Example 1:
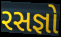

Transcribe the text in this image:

રસજ્ઞો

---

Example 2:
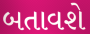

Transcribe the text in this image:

બતાવશે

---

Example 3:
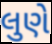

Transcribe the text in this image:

લુણે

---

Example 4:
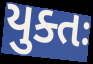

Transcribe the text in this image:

યુક્તઃ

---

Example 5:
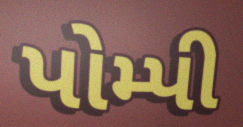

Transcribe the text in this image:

પોમ્પી